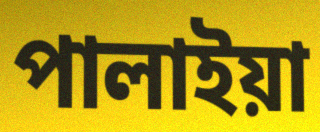
পালাইয়া